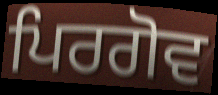
ਪਿਰਗੋਵ